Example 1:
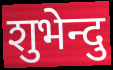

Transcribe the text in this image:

शुभेन्दु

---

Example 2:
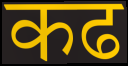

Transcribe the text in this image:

कढ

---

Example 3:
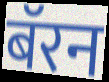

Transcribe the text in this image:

बॅरन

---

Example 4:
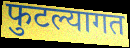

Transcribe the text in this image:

फुटल्यागत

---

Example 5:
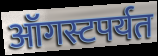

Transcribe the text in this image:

ऑगस्टपर्यत